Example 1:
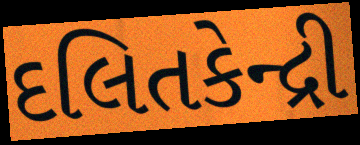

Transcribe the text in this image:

દલિતકેન્દ્રી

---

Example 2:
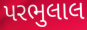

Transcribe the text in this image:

પરભુલાલ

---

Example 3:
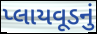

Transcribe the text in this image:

પ્લાયવૂડનું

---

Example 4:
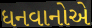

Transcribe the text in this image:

ધનવાનોએ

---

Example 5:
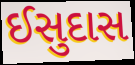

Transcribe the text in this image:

ઈસુદાસ